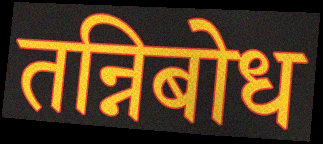
तन्निबोध